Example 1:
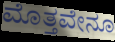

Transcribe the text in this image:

ಮೊತ್ತವೇನೂ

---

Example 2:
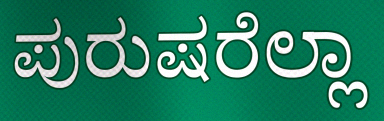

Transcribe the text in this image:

ಪುರುಷರೆಲ್ಲಾ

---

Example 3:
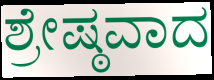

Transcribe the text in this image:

ಶ್ರೇಷ್ಠವಾದ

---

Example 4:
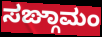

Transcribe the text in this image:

ಸಙ್ಗಾಮಂ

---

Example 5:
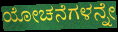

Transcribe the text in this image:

ಯೋಚನೆಗಳನ್ನೇ